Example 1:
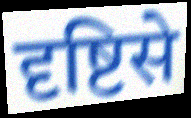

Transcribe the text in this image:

दृष्टिसे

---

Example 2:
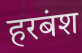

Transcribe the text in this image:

हरबंश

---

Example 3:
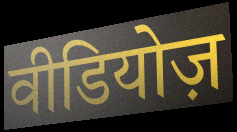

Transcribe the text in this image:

वीडियोज़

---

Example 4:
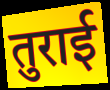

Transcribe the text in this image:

तुराई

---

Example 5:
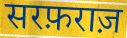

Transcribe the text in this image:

सरफ़राज़